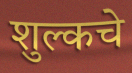
शुल्कचे